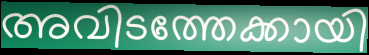
അവിടത്തേക്കായി